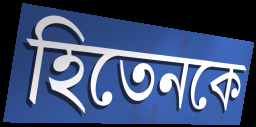
হিতেনকে